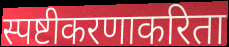
स्पष्टीकरणाकरिता